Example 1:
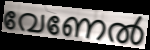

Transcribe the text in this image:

വേണേൽ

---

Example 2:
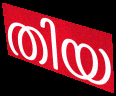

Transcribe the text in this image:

തിയ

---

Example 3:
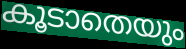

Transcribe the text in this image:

കൂടാതെയും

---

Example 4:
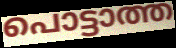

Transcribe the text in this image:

പൊട്ടാത്ത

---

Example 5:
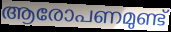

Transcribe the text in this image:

ആരോപണമുണ്ട്